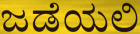
ಜಡೆಯಲಿ